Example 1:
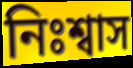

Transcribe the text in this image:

নিঃশ্বাস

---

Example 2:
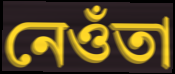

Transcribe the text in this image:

নেওঁতা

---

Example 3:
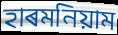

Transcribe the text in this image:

হাৰমনিয়াম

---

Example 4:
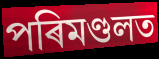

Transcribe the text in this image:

পৰিমণ্ডলত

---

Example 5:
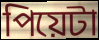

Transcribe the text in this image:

পিয়েটা